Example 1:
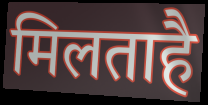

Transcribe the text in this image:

मिलताहै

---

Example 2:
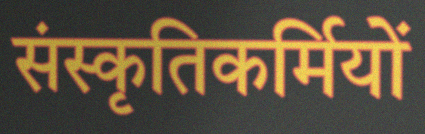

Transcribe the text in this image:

संस्कृतिकर्मियों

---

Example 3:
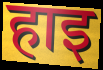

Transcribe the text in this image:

हाइ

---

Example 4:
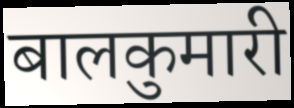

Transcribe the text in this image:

बालकुमारी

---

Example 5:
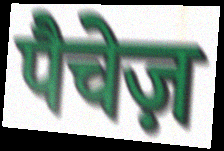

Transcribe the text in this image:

पैचेज़